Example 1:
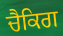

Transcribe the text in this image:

ਚੈਕਿਗ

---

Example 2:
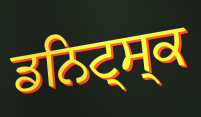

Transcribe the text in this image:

ਡਨਿਟ੍ਸ੍ਕ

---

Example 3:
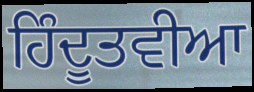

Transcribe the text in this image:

ਹਿੰਦੂਤਵੀਆ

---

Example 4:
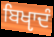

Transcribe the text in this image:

ਬਿਖੵਾਦੰ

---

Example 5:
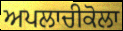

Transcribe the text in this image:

ਅਪਲਾਚੀਕੋਲਾ